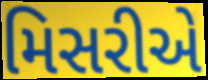
મિસરીએ